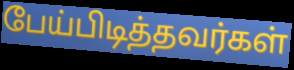
பேய்பிடித்தவர்கள்